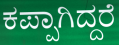
ಕಪ್ಪಾಗಿದ್ದರೆ